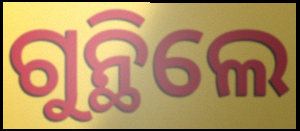
ଗୁନ୍ଥିଲେ